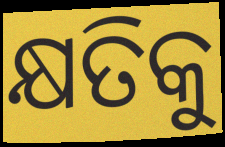
କ୍ଷତିକୁ